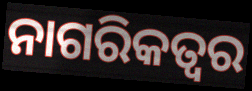
ନାଗରିକତ୍ଵର